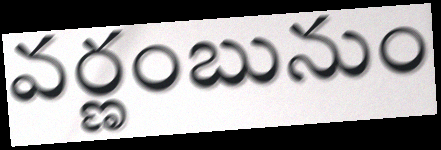
వర్ణంబునుం